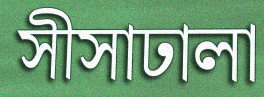
সীসাঢালা